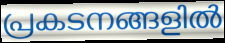
പ്രകടനങ്ങളിൽ